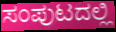
ಸಂಪುಟದಲ್ಲಿ